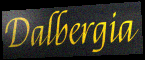
Dalbergia